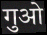
गुओ